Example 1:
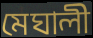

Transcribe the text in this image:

মেঘালী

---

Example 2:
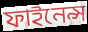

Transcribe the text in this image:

ফাইনেন্স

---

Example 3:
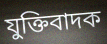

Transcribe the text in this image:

যুক্তিবাদক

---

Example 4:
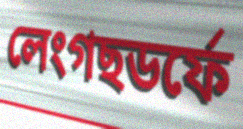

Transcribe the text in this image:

লেংগছডৰ্ফে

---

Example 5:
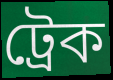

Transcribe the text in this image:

ট্ৰেক